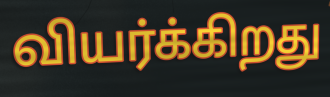
வியர்க்கிறது